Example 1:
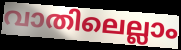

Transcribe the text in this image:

വാതിലെല്ലാം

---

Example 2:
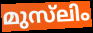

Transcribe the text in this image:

മുസ്‌ലിം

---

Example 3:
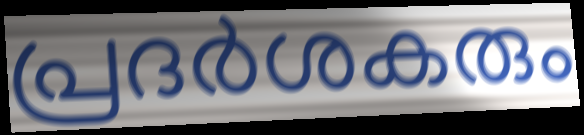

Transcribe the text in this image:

പ്രദർശകരും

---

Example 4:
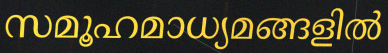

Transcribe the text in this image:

സമൂഹമാധ്യമങ്ങളിൽ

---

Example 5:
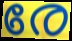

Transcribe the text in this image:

രേ